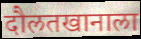
दौलतखानाला